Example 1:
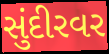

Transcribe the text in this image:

સુંદીરવર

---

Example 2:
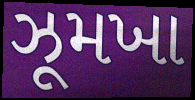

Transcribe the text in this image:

ઝૂમખા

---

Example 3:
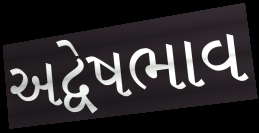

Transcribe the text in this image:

અદ્વેષભાવ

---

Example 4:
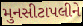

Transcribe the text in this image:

મુનસીટાપલીને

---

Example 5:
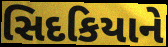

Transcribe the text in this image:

સિદકિયાને